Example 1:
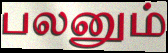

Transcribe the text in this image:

பலனும்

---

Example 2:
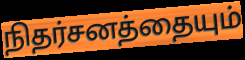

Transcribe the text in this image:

நிதர்சனத்தையும்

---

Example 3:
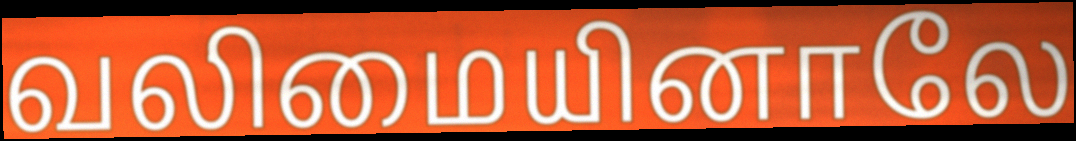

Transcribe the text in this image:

வலிமையினாலே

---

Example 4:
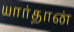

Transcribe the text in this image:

யார்தான்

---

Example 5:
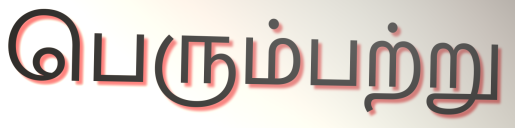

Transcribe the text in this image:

பெரும்பற்று